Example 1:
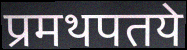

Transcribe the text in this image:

प्रमथपतये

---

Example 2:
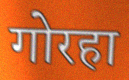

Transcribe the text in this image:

गोरहा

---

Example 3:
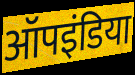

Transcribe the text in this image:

ऑपइंडिया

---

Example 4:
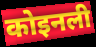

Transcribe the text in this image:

कोइनली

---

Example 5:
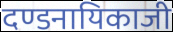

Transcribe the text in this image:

दण्डनायिकाजी